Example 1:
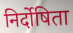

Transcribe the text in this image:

निर्दोषिता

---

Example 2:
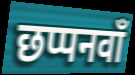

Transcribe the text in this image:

छप्पनवाँ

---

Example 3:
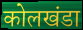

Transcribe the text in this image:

कोलखंडा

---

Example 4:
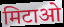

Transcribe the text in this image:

मिटाओ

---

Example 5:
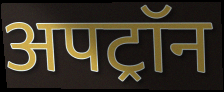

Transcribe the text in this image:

अपट्रॉन